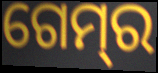
ଗେମ୍‌ର